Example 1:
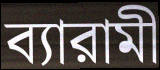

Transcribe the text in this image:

ব্যারামী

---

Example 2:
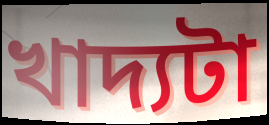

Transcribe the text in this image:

খাদ্যটা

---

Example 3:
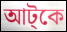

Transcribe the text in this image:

আট্কে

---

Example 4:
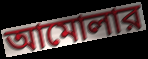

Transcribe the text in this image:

আমোলার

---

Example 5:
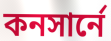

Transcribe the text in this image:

কনসার্নে